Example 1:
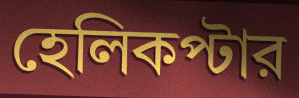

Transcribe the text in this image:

হেলিকপ্টার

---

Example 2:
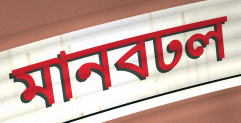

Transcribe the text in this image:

মানবঢল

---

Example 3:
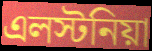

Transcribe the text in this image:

এলস্টনিয়া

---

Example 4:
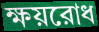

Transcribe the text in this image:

ক্ষয়রোধ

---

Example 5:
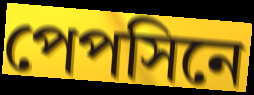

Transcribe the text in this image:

পেপসিনে